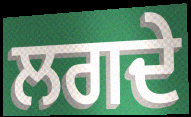
ਲਗਦੇ